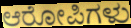
ಆರೋಪಿಗಳು